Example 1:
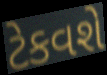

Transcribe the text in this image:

ટેકવશે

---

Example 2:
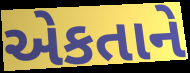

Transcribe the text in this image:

એકતાને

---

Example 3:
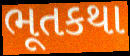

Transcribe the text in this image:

ભૂતકથા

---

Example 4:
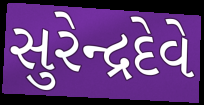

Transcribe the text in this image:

સુરેન્દ્રદેવે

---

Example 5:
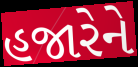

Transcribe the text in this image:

હજારેને